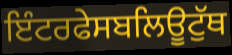
ਇੰਟਰਫੇਸਬਲਿਊਟੁੱਥ